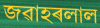
জৱাহৰলাল